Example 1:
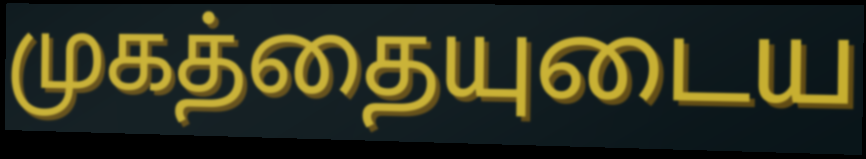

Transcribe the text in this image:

முகத்தையுடைய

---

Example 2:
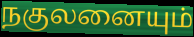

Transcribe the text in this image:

நகுலனையும்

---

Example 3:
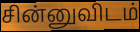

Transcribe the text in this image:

சின்னுவிடம்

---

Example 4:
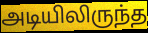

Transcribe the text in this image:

அடியிலிருந்த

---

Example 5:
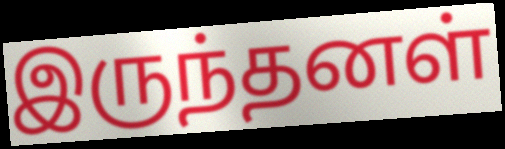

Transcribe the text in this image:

இருந்தனள்